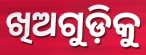
ଖିଅଗୁଡ଼ିକୁ